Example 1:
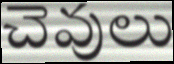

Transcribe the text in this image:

చెవులు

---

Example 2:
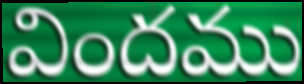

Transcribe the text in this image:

విందము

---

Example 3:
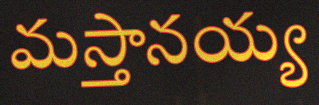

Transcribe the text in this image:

మస్తానయ్య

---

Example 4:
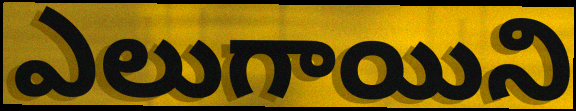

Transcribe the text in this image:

ఎలుగాయిని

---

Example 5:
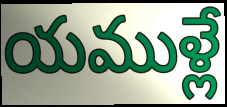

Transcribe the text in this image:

యముళ్లే